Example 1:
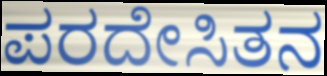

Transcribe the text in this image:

ಪರದೇಸಿತನ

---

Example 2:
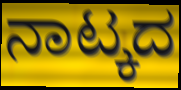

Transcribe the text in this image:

ನಾಟ್ಕದ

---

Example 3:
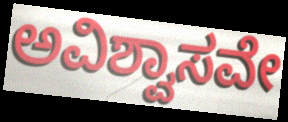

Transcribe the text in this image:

ಅವಿಶ್ವಾಸವೇ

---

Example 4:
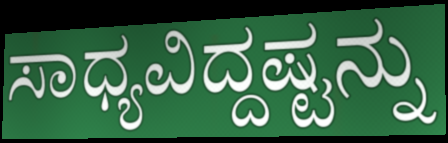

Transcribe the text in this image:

ಸಾಧ್ಯವಿದ್ದಷ್ಟನ್ನು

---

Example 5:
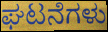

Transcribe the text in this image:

ಘಟನೆಗಳು